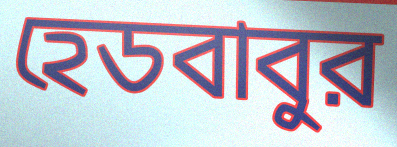
হেডবাবুর